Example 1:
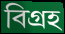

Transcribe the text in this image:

বিগ্রহ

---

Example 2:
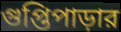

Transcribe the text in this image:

গুপ্তিপাড়ার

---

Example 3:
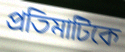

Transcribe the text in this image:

প্রতিমাটিকে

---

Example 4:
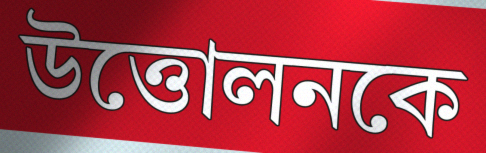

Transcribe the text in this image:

উত্তোলনকে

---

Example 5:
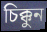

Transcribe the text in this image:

চিক্কুন